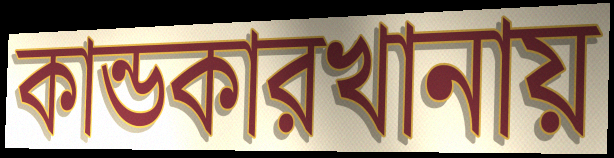
কান্ডকারখানায়